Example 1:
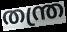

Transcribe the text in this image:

തന്ത്ര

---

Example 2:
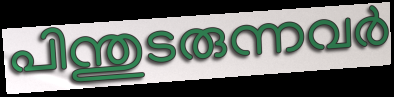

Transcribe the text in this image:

പിന്തുടരുന്നവർ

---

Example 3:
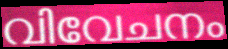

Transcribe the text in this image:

വിവേചനം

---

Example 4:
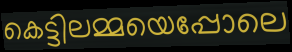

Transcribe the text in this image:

കെട്ടിലമ്മയെപ്പോലെ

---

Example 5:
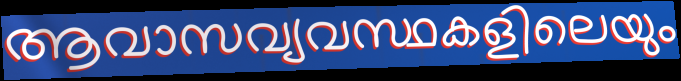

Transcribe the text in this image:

ആവാസവ്യവസ്ഥകളിലെയും